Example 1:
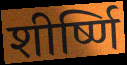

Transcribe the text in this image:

शीर्ष्णि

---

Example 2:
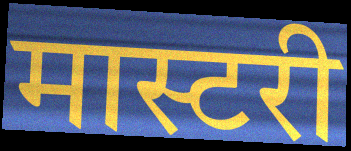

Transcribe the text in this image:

मास्टरी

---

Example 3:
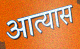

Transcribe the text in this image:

आत्यास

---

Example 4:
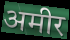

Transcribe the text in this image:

अमीर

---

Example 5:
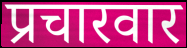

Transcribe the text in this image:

प्रचारवार